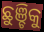
ଛୁଞ୍ଚିକୁ